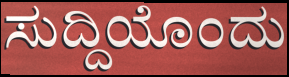
ಸುದ್ದಿಯೊಂದು